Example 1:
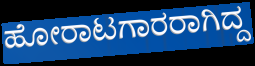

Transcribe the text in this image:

ಹೋರಾಟಗಾರರಾಗಿದ್ದ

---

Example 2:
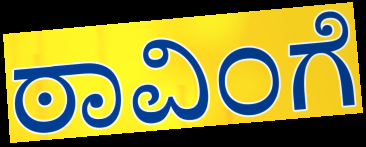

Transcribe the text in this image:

ಠಾವಿಂಗೆ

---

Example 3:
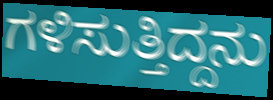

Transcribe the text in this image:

ಗಳಿಸುತ್ತಿದ್ದನು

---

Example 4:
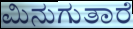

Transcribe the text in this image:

ಮಿನುಗುತಾರೆ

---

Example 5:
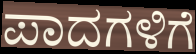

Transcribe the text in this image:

ಪಾದಗಳಿಗೆ